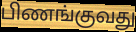
பிணங்குவது